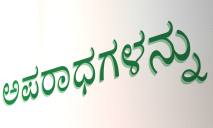
ಅಪರಾಧಗಳನ್ನು